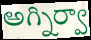
అగ్నిర్వా